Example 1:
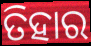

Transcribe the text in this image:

ତିହାର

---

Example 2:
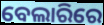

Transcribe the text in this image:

ବେଲାରିରେ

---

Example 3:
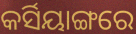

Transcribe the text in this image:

କର୍ସିୟାଙ୍ଗରେ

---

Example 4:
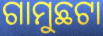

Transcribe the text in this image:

ଗାମୁଛଟା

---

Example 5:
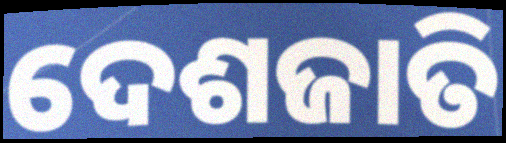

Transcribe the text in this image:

ଦେଶଜାତି